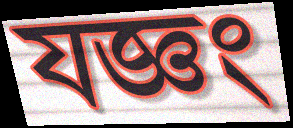
যজ্ঞং